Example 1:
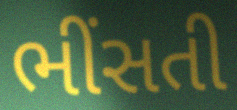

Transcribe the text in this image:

ભીંસતી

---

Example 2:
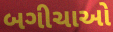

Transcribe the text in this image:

બગીચાઓ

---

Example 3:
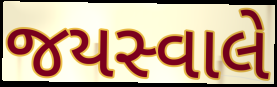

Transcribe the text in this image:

જયસ્વાલે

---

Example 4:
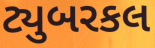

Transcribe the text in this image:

ટ્યુબરકલ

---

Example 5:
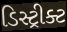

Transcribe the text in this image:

ડિસ્ટ્રીક્ટ